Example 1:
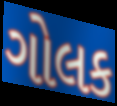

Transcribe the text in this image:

ગોલક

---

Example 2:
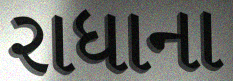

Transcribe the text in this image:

રાધાના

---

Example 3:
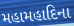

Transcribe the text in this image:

મહામહાદિના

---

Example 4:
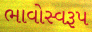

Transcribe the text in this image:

ભાવોસ્વરૂપ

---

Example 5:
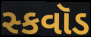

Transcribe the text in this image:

સ્કવૉડ